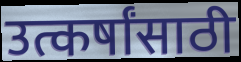
उत्कर्षांसाठी